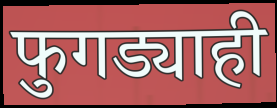
फुगड्याही